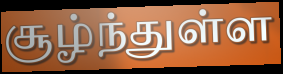
சூழ்ந்துள்ள